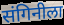
संगिनीला